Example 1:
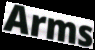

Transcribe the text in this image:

Arms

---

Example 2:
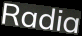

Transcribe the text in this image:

Radia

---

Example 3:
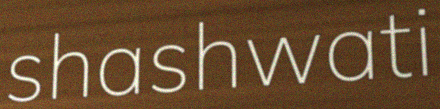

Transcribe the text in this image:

shashwati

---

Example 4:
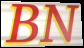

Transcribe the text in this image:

BN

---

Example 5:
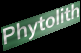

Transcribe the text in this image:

Phytolith